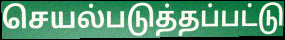
செயல்படுத்தப்பட்டு